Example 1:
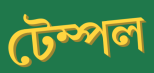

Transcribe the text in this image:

টেম্পল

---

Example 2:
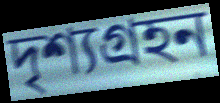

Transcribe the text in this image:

দৃশ্যগ্ৰহন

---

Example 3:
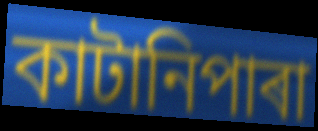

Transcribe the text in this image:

কাটানিপাৰা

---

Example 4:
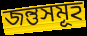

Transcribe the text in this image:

জন্তুসমূহ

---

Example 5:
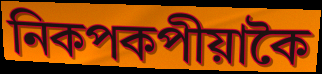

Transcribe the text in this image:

নিকপকপীয়াকৈ